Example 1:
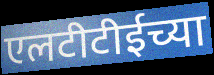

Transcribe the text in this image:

एलटीटीईच्या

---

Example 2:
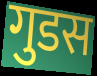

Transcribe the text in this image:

गुडस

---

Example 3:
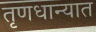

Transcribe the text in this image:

तृणधान्यात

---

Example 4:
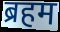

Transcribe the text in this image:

ब्रहम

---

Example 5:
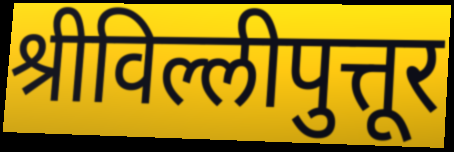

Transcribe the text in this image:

श्रीविल्लीपुत्तूर